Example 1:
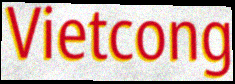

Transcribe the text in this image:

Vietcong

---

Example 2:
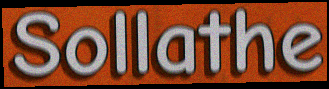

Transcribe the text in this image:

Sollathe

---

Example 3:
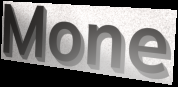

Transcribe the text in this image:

Mone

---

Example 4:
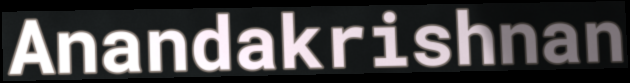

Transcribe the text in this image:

Anandakrishnan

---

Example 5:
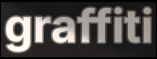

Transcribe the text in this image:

graffiti